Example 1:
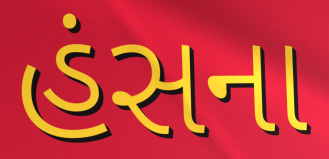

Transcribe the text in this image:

હંસના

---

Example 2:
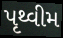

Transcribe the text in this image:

પૃથ્વીમ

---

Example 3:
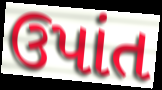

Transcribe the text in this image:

ઉપાંત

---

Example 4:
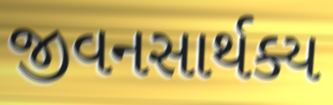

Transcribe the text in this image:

જીવનસાર્થક્ય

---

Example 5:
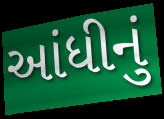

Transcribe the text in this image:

આંધીનું